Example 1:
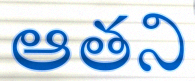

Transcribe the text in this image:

ఆతని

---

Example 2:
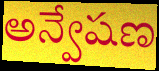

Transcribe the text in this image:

అన్వేషణ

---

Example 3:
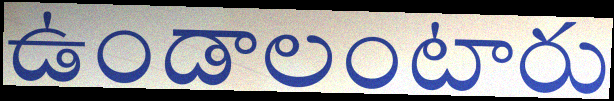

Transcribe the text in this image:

ఉండాలంటారు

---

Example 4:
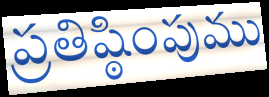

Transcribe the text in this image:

ప్రతిష్ఠింపుము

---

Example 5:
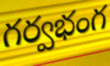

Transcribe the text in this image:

గర్వభంగ